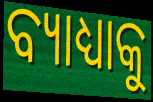
ବ୍ୟାଧ୍ୟାକୁ